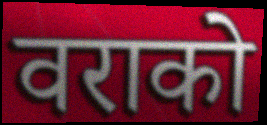
वराको